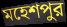
মহেশপুর